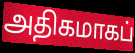
அதிகமாகப்